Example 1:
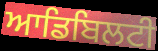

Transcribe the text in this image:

ਆਡਿਬਿਲਟੀ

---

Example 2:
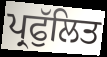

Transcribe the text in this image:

ਪ੍ਰਫੁੱਲਿਤ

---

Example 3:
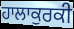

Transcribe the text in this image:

ਹਾਲਾਕੁਰਕੀ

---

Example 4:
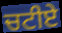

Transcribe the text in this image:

ਚਟੀਏ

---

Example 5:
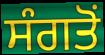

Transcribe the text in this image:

ਸੰਗਤੋਂ